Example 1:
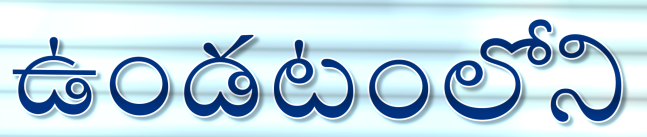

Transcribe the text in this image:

ఉండటంలోని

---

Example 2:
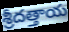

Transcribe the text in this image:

శ్రీదత్తాయ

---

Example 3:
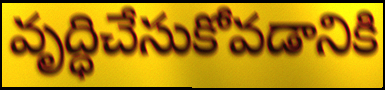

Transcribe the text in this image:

వృద్ధిచేసుకోవడానికి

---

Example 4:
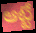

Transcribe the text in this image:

ఆట్టే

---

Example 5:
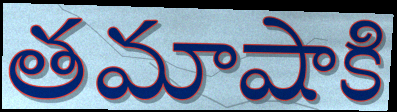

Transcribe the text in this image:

తమాషాకి